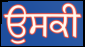
ਉਸਕੀ